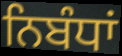
ਨਿਬੰਧਾਂ